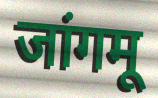
जांगमू